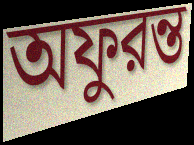
অফুরন্ত